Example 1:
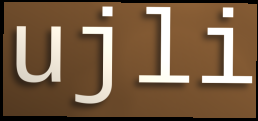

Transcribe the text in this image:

ujli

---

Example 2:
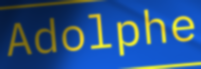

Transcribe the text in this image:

Adolphe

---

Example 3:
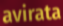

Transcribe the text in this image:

avirata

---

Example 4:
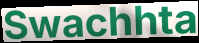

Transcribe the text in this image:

Swachhta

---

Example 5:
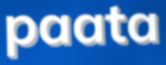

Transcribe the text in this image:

paata